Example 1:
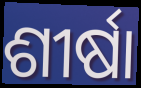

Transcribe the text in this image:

ଶୀର୍ଷା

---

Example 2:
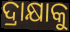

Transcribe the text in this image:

ଦ୍ରାକ୍ଷାକୁ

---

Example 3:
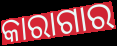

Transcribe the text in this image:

କାରାଗାର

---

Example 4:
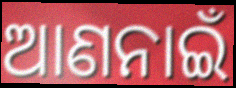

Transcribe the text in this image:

ଆଣନାଇଁ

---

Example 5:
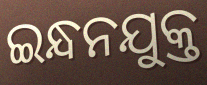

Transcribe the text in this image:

ଇନ୍ଧନଯୁକ୍ତ